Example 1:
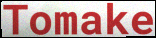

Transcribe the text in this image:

Tomake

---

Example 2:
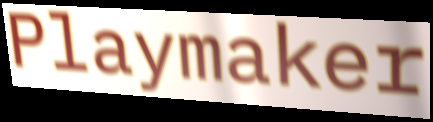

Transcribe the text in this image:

Playmaker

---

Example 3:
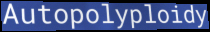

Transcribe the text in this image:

Autopolyploidy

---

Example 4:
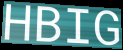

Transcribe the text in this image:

HBIG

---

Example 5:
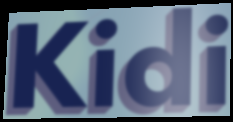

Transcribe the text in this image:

Kidi